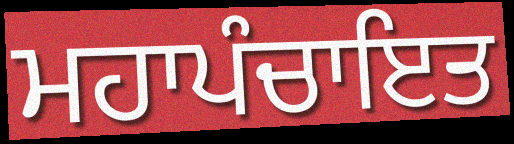
ਮਹਾਪੰਚਾਇਤ